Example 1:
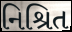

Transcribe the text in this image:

નિશ્રિત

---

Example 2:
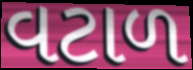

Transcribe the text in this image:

વટાળ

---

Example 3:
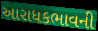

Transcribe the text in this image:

આરાધકભાવની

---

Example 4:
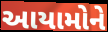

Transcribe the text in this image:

આયામોને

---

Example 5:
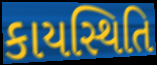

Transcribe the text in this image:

કાયસ્થિતિ